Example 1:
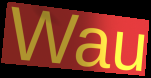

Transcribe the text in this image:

Wau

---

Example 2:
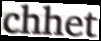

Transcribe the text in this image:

chhet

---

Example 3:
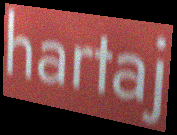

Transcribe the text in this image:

hartaj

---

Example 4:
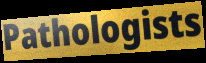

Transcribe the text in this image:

Pathologists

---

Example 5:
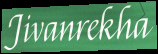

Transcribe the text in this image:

Jivanrekha